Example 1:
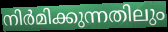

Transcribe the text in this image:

നിർമിക്കുന്നതിലും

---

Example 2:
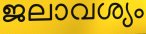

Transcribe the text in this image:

ജലാവശ്യം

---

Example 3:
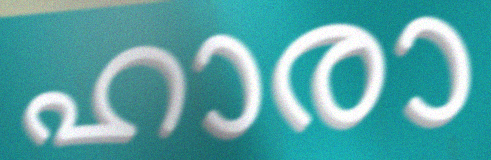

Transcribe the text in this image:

ഹാരാ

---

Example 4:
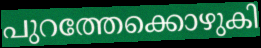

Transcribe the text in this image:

പുറത്തേക്കൊഴുകി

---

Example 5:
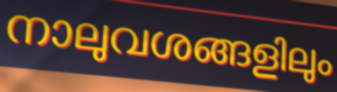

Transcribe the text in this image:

നാലുവശങ്ങളിലും